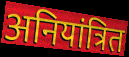
अनियांत्रित